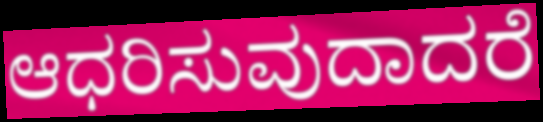
ಆಧರಿಸುವುದಾದರೆ